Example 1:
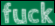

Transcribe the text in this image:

fuck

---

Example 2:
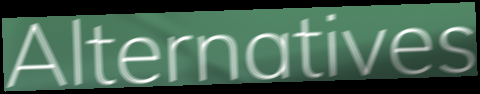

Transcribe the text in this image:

Alternatives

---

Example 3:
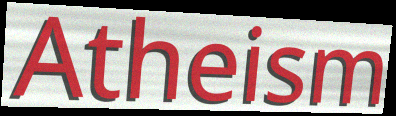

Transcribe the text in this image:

Atheism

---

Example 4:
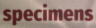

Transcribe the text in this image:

specimens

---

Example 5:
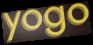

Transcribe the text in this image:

yogo